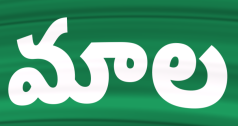
మాల